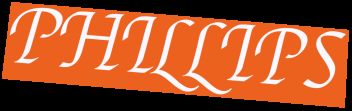
PHILLIPS